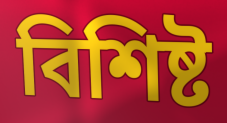
বিশিষ্ট